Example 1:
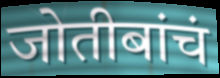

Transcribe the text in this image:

जोतीबांचं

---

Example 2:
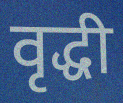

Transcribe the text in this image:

वृद्धी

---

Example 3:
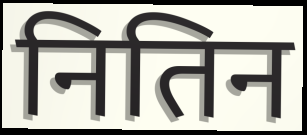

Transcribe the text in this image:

नितिन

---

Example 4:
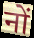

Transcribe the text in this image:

नों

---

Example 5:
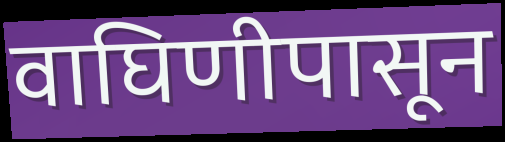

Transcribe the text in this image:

वाघिणीपासून